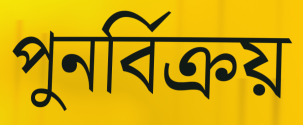
পুনর্বিক্রয়